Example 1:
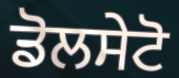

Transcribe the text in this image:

ਡੋਲਸੇਟੋ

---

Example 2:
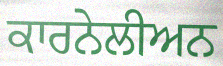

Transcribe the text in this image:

ਕਾਰਨੇਲੀਅਨ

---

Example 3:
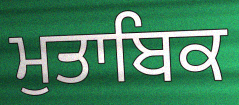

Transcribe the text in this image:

ਮੁਤਾਬਿਕ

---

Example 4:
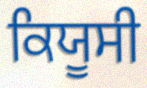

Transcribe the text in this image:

ਕਿਯੂਸੀ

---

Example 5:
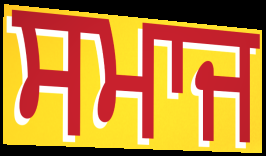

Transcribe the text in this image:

ਸਮਾਜ